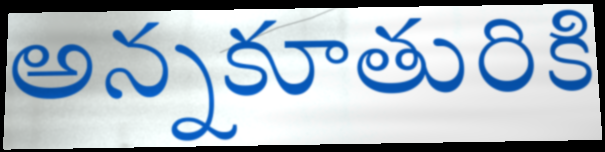
అన్నకూతురికి